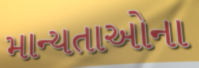
માન્યતાઓના